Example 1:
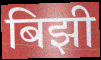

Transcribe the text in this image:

बिझी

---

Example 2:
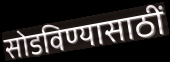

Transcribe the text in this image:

सोडविण्यासाठीं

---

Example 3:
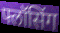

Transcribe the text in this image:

फ्लॉसिंग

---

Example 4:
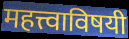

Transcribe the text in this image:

महत्त्वाविषयी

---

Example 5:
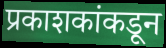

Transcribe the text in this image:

प्रकाशकांकडून